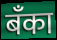
बँका